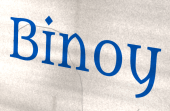
Binoy